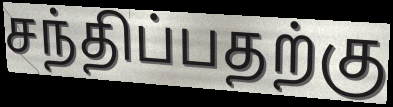
சந்திப்பதற்கு